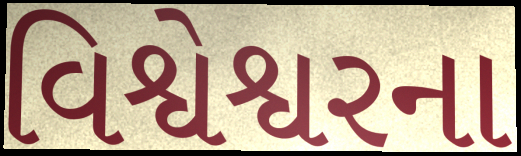
વિશ્વેશ્વરના